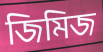
জিমিজ